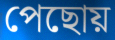
পেছোয়